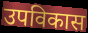
उपविकास